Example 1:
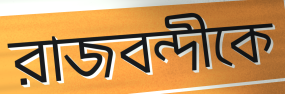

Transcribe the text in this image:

রাজবন্দীকে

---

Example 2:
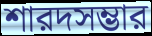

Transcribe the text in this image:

শারদসম্ভার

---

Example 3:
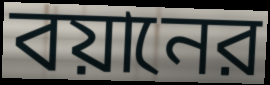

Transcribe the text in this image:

বয়ানের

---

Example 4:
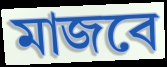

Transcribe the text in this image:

মাজবে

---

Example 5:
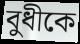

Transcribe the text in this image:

বুধীকে